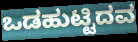
ಒಡಹುಟ್ಟಿದವ